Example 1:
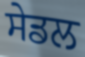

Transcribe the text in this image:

ਸੇਡਲ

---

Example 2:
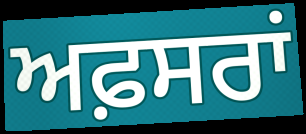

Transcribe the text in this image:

ਅਫ਼ਸਰਾਂ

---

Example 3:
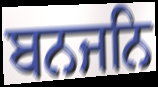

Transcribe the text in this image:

ਬਨਜਨਿ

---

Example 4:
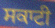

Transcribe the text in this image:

ਸਕਾਟੀ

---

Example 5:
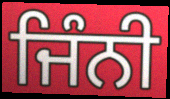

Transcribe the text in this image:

ਜਿੰਨੀ